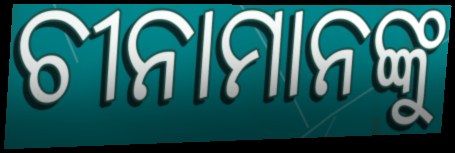
ଚୀନାମାନଙ୍କୁ